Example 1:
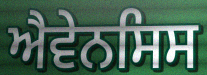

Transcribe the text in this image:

ਐਵੇਨਸਿਸ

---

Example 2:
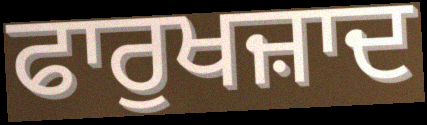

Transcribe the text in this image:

ਫਾਰੁਖਜ਼ਾਦ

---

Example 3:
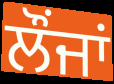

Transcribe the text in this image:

ਲੌਂਜਾਂ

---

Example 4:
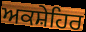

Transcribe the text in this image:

ਅਕਸ਼ੇਹਿਰ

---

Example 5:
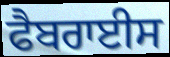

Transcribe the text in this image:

ਫੈਬਰਾਈਸ